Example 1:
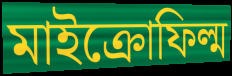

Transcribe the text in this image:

মাইক্রোফিল্ম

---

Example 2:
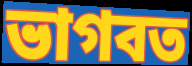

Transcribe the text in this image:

ভাগবত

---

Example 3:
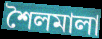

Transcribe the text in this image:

শৈলমালা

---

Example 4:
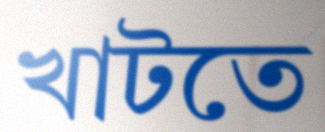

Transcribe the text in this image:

খাটতে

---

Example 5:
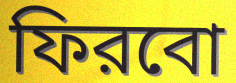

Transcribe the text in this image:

ফিরবো